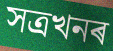
সত্ৰখনৰ